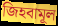
জিহবামূল